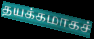
தயக்கமாகச்